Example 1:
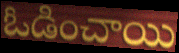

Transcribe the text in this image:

ఓడించాయి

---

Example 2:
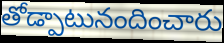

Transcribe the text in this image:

తోడ్పాటునందించారు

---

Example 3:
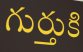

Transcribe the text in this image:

గుర్తుకి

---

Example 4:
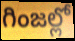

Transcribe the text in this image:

గింజల్లో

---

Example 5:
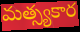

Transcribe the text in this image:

మత్స్యకార